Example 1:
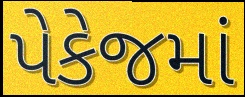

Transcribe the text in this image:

પેકેજમાં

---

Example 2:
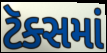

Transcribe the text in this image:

ટૅક્સમાં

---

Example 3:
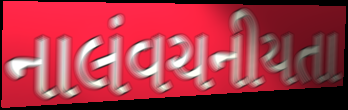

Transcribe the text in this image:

નાલંવચનીયતા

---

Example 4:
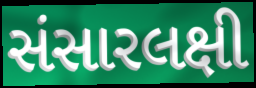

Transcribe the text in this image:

સંસારલક્ષી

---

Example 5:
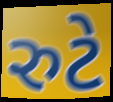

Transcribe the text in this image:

રુટે